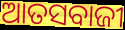
ଆତସବାଜୀ